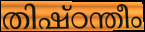
തിഷ്ഠന്തീം